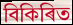
বিকিৰিত